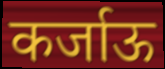
कर्जाऊ